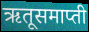
ऋतूसमाप्ती